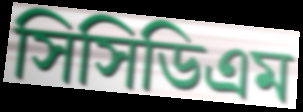
সিসিডিএম